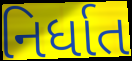
નિર્ધાત